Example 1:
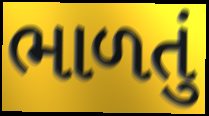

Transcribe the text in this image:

ભાળતું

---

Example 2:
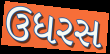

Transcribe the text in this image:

ઉધરસ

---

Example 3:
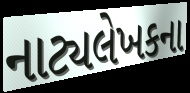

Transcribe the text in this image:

નાટ્યલેખકના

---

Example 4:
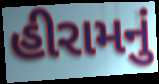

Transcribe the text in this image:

હીરામનું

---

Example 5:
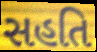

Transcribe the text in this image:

સહતિ